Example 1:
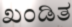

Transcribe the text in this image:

ಖಂಡಿತ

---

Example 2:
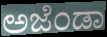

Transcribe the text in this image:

ಅಜೆಂಡಾ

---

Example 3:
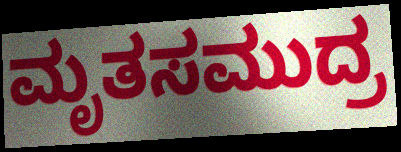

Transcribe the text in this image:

ಮೃತಸಮುದ್ರ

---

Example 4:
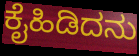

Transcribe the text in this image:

ಕೈಹಿಡಿದನು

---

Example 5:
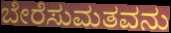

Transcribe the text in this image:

ಬೇರೆಸುಮತವನು